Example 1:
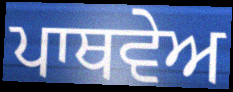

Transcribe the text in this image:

ਪਾਥਵੇਅ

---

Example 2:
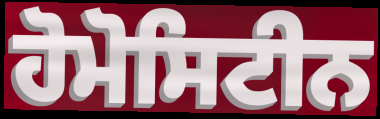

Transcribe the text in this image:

ਹੋਮੋਸਿਟੀਨ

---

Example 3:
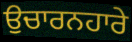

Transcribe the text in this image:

ਉਚਾਰਨਹਾਰੇ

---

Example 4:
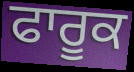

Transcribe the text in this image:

ਫਾਰੂਕ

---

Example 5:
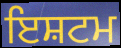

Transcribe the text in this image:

ਇਸ਼ਟਮ